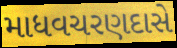
માધવચરણદાસે